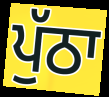
ਪੁੱਠਾ